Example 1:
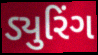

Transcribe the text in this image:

ડ્યુરિંગ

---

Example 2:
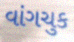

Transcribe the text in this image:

વાંગચુક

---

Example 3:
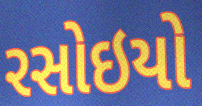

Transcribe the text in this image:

રસોઇયો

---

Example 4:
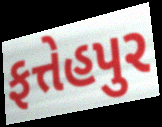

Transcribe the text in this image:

ફત્તેહપુર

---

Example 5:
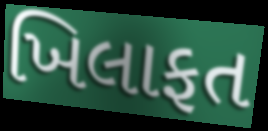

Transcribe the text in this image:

ખિલાફત